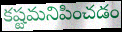
కష్టమనిపించడం